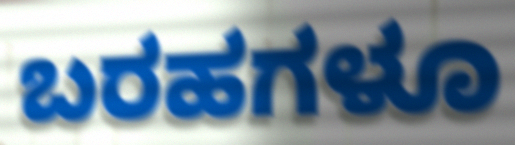
ಬರಹಗಳೂ